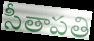
సీతాపతి